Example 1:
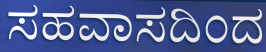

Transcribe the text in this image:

ಸಹವಾಸದಿಂದ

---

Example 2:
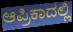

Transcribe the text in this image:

ಆಪ್ರಿಕಾದಲ್ಲಿ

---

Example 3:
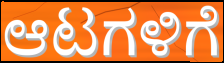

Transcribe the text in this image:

ಆಟಗಳಿಗೆ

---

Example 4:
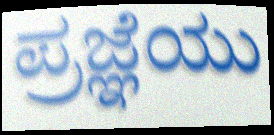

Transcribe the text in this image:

ಪ್ರಜ್ಞೆಯು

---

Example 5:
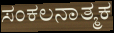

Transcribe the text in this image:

ಸಂಕಲನಾತ್ಮಕ